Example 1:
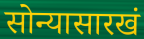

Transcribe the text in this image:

सोन्यासारखं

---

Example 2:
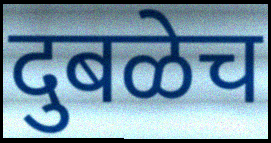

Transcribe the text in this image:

दुबळेच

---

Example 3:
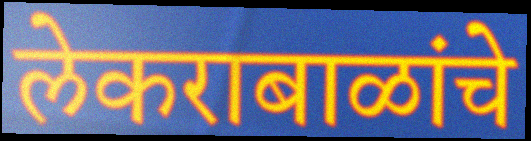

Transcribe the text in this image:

लेकराबाळांचे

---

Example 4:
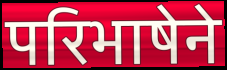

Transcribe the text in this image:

परिभाषेने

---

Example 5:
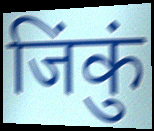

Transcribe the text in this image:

जिंकुं